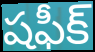
షఫీక్